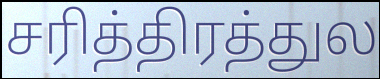
சரித்திரத்துல